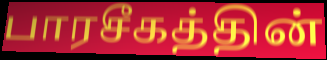
பாரசீகத்தின்